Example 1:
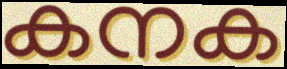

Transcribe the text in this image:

കനക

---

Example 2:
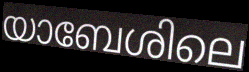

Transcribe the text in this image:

യാബേശിലെ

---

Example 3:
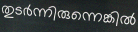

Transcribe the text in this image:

തുടർന്നിരുന്നെങ്കിൽ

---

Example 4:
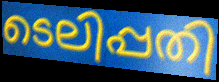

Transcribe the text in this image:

ടെലിപ്പതി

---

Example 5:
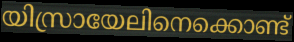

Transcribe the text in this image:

യിസ്രായേലിനെക്കൊണ്ട്